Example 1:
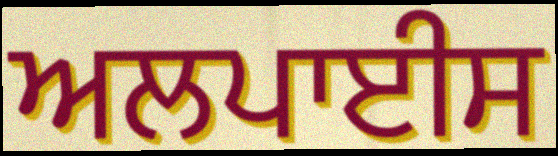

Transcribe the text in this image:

ਅਲਪਾਈਸ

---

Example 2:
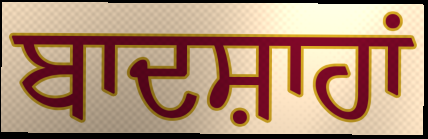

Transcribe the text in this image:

ਬਾਦਸ਼ਾਹਾਂ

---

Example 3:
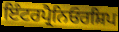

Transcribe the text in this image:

ਇੰਟਰਪ੍ਰੈਨਿਓਰਸ਼ਿਪ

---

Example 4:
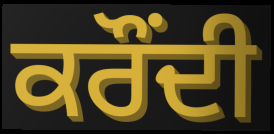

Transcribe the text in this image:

ਕਰੌਂਦੀ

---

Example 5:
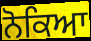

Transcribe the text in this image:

ਨੋਕਿਆ